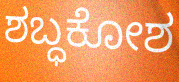
ಶಬ್ಧಕೋಶ